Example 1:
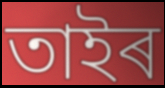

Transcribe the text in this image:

তাইৰ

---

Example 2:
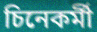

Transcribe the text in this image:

চিনেকৰ্মী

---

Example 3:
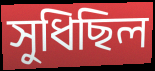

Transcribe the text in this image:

সুধিছিল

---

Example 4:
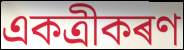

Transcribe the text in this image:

একত্ৰীকৰণ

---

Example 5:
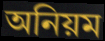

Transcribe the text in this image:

অনিয়ম